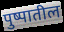
पुष्पातील